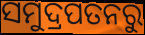
ସମୁଦ୍ରପତନରୁ